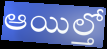
ఆయిల్తో